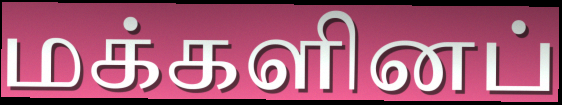
மக்களினப்